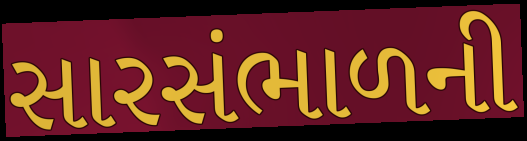
સારસંભાળની